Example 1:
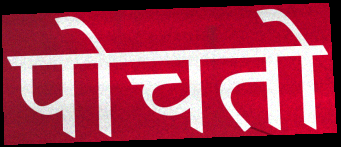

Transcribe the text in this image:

पोचतो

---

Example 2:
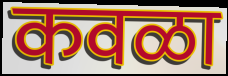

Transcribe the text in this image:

कवळा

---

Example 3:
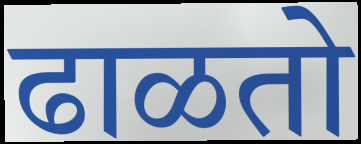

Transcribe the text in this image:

ढाळतो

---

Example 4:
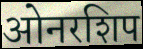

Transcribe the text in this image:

ओनरशिप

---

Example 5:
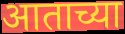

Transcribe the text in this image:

आताच्या